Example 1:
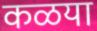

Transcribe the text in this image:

कळया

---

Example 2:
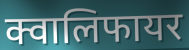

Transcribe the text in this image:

क्वालिफायर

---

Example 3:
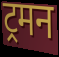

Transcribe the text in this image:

ट्रमन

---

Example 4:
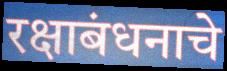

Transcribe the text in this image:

रक्षाबंधनाचे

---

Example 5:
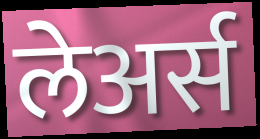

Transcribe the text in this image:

लेअर्स